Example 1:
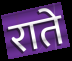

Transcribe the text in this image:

राते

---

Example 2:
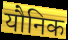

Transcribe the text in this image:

यौनिक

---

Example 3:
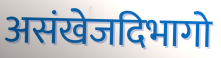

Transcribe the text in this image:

असंखेजदिभागो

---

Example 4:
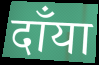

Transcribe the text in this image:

दाँया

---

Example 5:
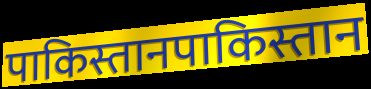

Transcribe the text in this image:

पाकिस्तानपाकिस्तान